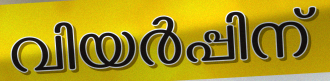
വിയർപ്പിന്